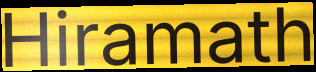
Hiramath